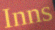
Inns